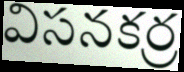
విసనకర్ర